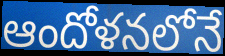
ఆందోళనలోనే